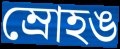
ম্রোহঙ